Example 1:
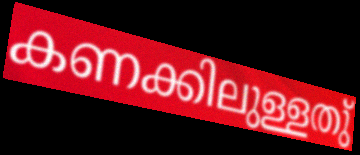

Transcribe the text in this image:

കണക്കിലുള്ളതു്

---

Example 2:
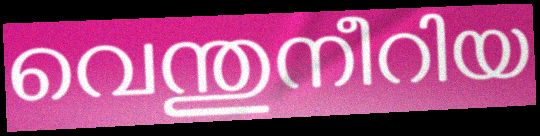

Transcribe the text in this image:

വെന്തുനീറിയ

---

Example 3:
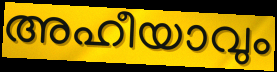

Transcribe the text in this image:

അഹീയാവും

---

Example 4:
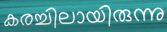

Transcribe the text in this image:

കരച്ചിലായിരുന്നു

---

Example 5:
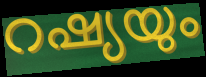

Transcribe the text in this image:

റഷ്യയും